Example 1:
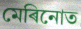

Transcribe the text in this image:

মেৰিনোত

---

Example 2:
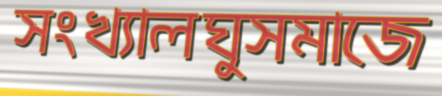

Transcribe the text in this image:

সংখ্যালঘুসমাজে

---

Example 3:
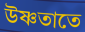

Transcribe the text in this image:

উষ্ণতাতে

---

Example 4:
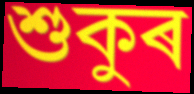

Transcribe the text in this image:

শুকুৰ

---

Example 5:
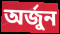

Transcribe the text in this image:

অৰ্জুন